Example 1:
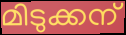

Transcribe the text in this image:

മിടുക്കന്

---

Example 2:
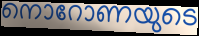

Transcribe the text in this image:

നൊറോണയുടെ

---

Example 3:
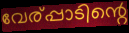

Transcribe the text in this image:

വേര്പ്പാടിന്റെ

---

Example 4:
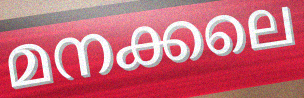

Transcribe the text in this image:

മനക്കലെ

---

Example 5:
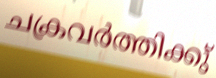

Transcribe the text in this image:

ചക്രവർത്തിക്കു്